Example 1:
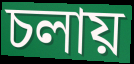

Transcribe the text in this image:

চলায়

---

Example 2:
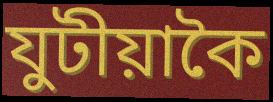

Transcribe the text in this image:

যুটীয়াকৈ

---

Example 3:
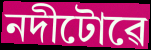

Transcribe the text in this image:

নদীটোৱে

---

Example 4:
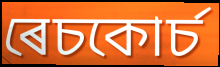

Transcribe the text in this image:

ৰেচকোৰ্চ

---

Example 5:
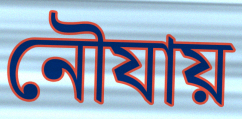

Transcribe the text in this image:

নৌযায়